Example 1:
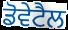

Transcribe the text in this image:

ਡੋਵੇਟੈਲ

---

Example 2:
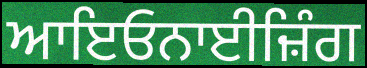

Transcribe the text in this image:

ਆਇਓਨਾਈਜ਼ਿੰਗ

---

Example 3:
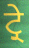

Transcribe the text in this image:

ਟ੍ਰੇ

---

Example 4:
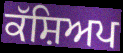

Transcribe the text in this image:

ਕੱਸ਼ਿਅਪ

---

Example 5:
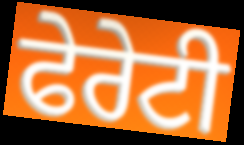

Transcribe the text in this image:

ਫੇਰੇਟੀ